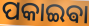
ପକାଇଵା